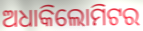
ଅଧାକିଲୋମିଟର